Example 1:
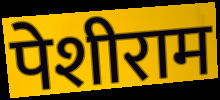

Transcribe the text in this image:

पेशीराम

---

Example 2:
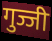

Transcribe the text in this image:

गुज्जी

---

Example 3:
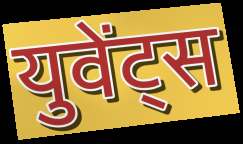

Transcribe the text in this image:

युवेंट्स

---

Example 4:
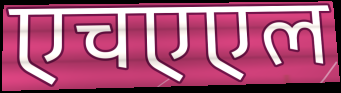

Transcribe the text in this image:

एचएएल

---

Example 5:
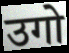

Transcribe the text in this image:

उगो